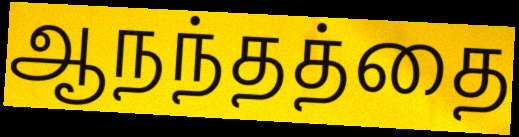
ஆநந்தத்தை